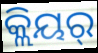
କ୍ଲିୟର୍